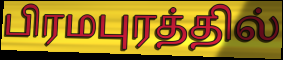
பிரமபுரத்தில்